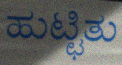
ಹುಟ್ಟಿತು